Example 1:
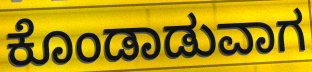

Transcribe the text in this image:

ಕೊಂಡಾಡುವಾಗ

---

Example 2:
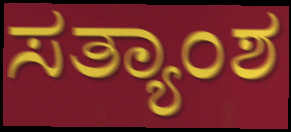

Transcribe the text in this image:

ಸತ್ಯಾಂಶ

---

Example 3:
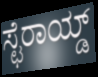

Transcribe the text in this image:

ಸ್ಟೆರಾಯ್ಡ್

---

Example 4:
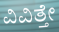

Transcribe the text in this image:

ವಿವಿತ್ತೇ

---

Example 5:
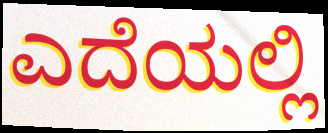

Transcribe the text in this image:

ಎದೆಯಲ್ಲಿ